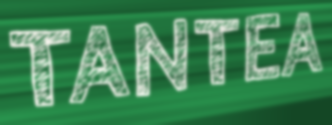
TANTEA